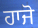
ਹਾਜੋ